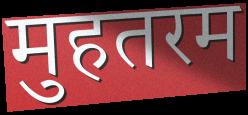
मुहतरम